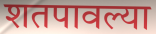
शतपावल्या